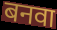
बनवा